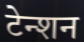
टेन्शन